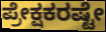
ಪ್ರೇಕ್ಷಕರಷ್ಟೇ